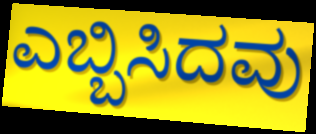
ಎಬ್ಬಿಸಿದವು